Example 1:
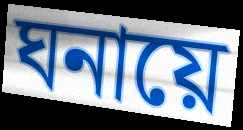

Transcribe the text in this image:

ঘনায়ে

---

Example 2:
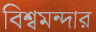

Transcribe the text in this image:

বিশ্বমন্দার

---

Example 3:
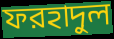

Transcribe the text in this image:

ফরহাদুল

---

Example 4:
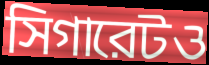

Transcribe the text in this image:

সিগারেটও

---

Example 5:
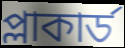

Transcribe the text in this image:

প্লাকার্ড